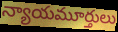
న్యాయమూర్తులు